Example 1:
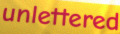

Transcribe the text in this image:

unlettered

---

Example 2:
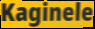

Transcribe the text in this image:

Kaginele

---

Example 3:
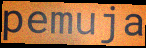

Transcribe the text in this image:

pemuja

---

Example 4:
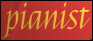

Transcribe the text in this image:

pianist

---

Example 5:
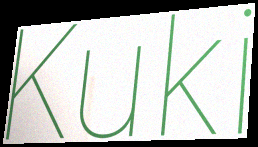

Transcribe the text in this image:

Kuki